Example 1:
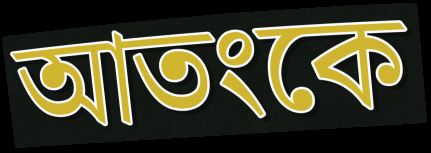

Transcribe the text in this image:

আতংকে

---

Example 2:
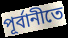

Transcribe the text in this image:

পূর্বানীতে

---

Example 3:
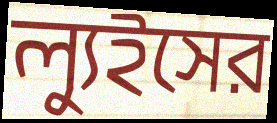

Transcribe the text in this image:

ল্যুইসের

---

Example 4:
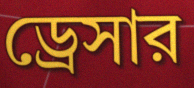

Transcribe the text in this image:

ড্রেসার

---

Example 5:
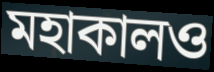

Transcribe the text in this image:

মহাকালও